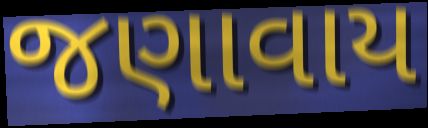
જણાવાય